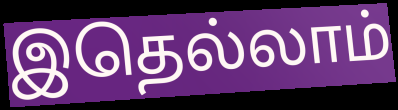
இதெல்லாம்